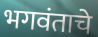
भगवंताचे